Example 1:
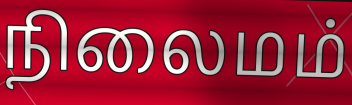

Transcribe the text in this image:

நிலைமம்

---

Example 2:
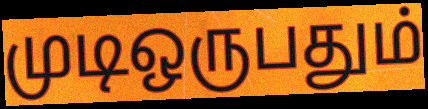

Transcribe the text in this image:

முடிஒருபதும்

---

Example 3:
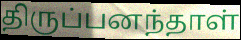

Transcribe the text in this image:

திருப்பனந்தாள்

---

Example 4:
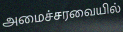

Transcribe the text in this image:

அமைச்சரவையில்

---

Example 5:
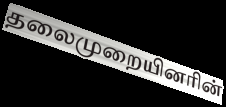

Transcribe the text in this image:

தலைமுறையினரின்